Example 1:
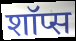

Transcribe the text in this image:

शॉप्स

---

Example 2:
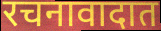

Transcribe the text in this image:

रचनावादात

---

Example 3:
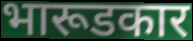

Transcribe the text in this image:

भारूडकार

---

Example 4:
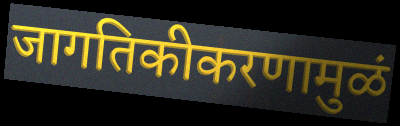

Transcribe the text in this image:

जागतिकीकरणामुळं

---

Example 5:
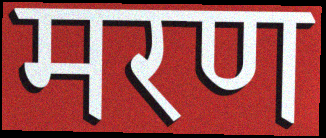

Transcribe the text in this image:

मरण